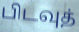
பிடவுத்